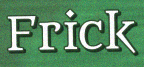
Frick